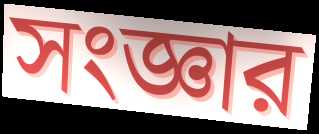
সংজ্ঞার